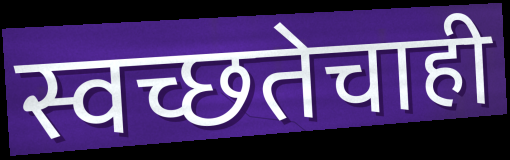
स्वच्छतेचाही